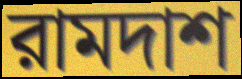
রামদাশ